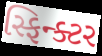
સ્ફિન્ક્ટર